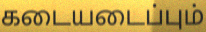
கடையடைப்பும்